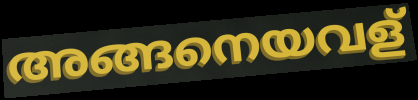
അങ്ങനെയവള്